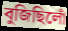
বুজিছিলোঁ